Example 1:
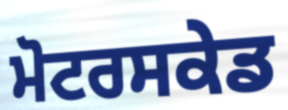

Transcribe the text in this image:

ਮੋਟਰਸਕੇਡ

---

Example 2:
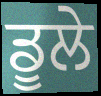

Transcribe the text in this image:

ਡੂਲੇ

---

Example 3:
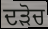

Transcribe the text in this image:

ਦੜੋਚ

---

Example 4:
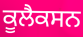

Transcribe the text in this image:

ਕੂਲੈਕਸਨ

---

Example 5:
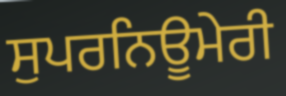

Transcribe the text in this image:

ਸੁਪਰਨਿਊਮੇਰੀ